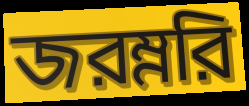
জরম্নরি